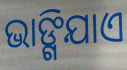
ଭାଙ୍ଗିଯାଏ